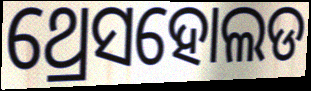
ଥ୍ରେସହୋଲଡ